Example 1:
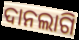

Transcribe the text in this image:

ଦାନଲାଗି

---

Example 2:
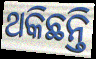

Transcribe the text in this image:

ଥକିଛନ୍ତି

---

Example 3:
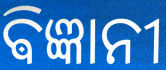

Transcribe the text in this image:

ଵିଜ୍ଞାନୀ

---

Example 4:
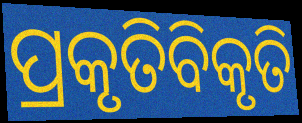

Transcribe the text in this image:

ପ୍ରକୃତିବିକୃତି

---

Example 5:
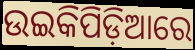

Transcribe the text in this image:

ଉଇକିପିଡ଼ିଆରେ